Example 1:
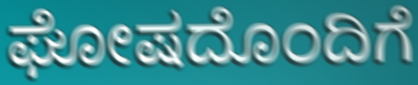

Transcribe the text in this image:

ಘೋಷದೊಂದಿಗೆ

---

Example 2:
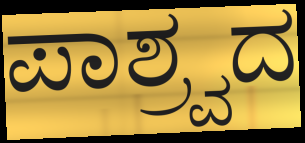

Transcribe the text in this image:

ಪಾಶ್ರ್ವದ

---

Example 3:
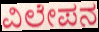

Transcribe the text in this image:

ವಿಲೇಪನ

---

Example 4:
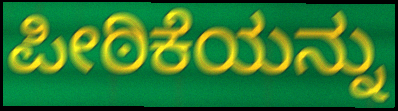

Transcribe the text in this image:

ಪೀಠಿಕೆಯನ್ನು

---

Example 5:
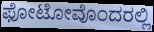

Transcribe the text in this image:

ಫೋಟೋವೊಂದರಲ್ಲಿ